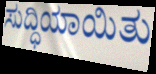
ಸುದ್ಧಿಯಾಯಿತು